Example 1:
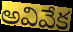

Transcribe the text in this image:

అవివేక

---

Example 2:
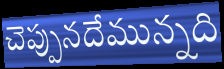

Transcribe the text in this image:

చెప్పునదేమున్నది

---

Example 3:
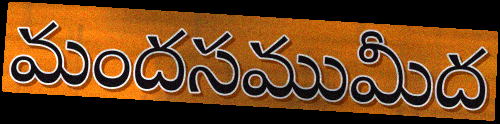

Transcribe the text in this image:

మందసముమీద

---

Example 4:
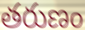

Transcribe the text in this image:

తరుణం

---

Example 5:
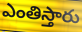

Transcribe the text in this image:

ఎంతిస్తారు